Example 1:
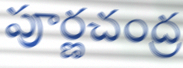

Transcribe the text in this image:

పూర్ణచంద్ర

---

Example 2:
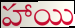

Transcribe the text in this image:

హాయి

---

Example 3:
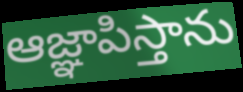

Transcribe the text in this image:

ఆజ్ఞాపిస్తాను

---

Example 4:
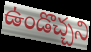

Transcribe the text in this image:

ఉండొచ్చని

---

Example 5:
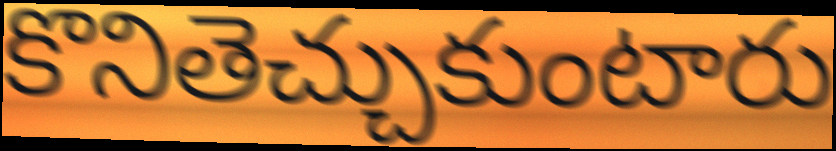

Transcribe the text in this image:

కొనితెచ్చుకుంటారు